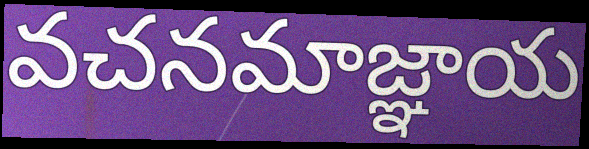
వచనమాజ్ఞాయ